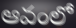
ఆవంలో